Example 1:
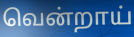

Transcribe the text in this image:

வென்றாய்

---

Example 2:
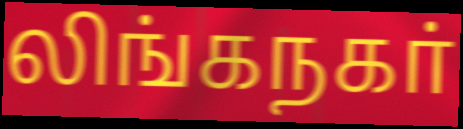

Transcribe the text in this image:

லிங்கநகர்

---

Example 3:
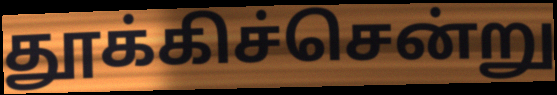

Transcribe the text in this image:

தூக்கிச்சென்று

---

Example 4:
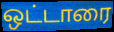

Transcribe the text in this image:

ஒட்டாரை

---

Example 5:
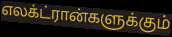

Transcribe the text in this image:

எலக்ட்ரான்களுக்கும்